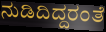
ನುಡಿದಿದ್ದರಂತೆ